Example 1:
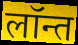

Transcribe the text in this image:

लॉन्त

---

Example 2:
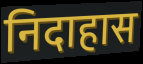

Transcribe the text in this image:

निदाहास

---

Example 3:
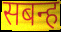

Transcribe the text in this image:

सबन्ह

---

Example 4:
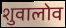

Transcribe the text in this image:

शुवालोव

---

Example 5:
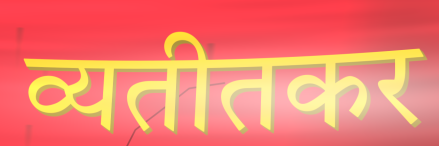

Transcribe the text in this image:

व्यतीतकर